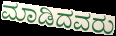
ಮಾಡಿದವರು